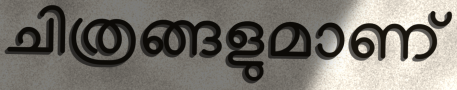
ചിത്രങ്ങളുമാണ്